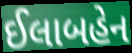
ઈલાબહેન